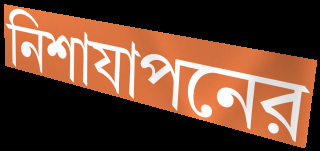
নিশাযাপনের